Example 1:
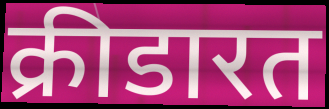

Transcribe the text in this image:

क्रीडारत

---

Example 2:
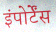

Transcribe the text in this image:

इंपोर्टेंस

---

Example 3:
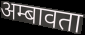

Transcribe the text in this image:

अम्बावता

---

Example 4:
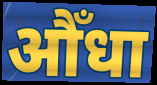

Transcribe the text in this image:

औँधा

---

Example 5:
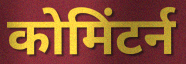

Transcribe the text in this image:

कोमिंटर्न